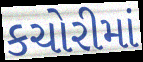
કચોરીમાં